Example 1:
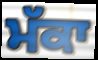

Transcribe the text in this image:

ਮੱਕਾ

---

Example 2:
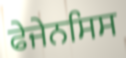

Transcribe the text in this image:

ਫੇਜੇਨਸਿਸ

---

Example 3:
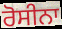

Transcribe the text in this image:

ਰੋਸੀਨਾ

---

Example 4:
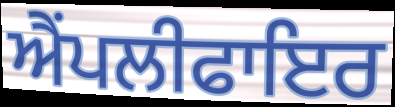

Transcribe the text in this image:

ਐਂਪਲੀਫਾਇਰ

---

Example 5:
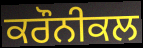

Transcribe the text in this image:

ਕਰੌਨੀਕਲ